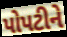
પોપટીને